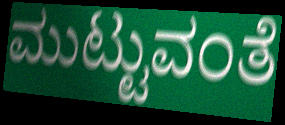
ಮುಟ್ಟುವಂತೆ